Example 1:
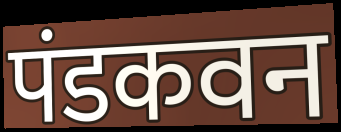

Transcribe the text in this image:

पंडकवन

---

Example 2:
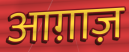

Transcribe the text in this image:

आग़ाज़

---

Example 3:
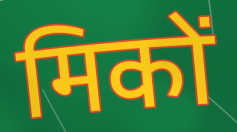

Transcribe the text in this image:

मिकों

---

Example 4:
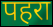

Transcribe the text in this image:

पहरा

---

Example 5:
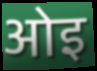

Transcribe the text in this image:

ओइ